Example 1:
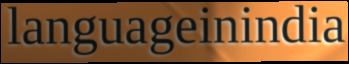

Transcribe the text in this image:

languageinindia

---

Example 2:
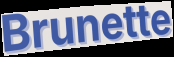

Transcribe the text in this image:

Brunette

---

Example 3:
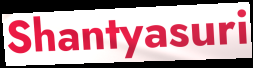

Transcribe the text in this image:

Shantyasuri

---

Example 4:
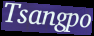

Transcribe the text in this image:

Tsangpo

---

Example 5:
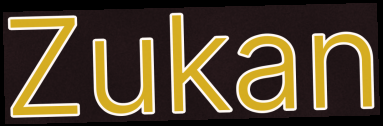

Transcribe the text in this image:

Zukan